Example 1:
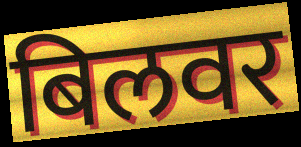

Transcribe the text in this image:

बिलवर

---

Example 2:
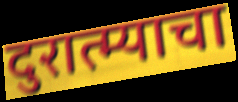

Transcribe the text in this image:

दुरात्म्याचा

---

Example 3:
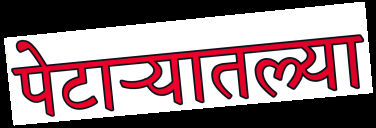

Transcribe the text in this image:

पेटाऱ्यातल्या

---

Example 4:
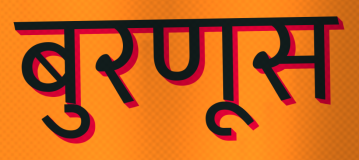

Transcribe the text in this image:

बुरणूस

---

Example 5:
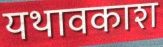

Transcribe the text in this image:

यथावकाश